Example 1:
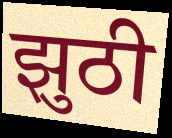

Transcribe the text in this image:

झुठी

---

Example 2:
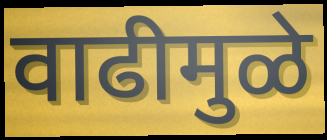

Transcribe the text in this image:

वाढीमुळे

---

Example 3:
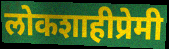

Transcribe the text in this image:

लोकशाहीप्रेमी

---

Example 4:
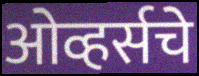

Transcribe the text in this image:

ओव्हर्सचे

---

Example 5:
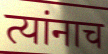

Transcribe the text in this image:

त्यांनाच